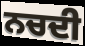
ਨਚਦੀ